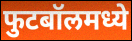
फुटबॉलमध्ये